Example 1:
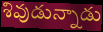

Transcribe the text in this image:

శివుడున్నాడు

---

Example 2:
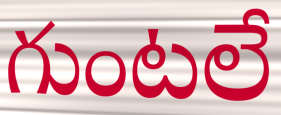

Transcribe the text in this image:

గుంటలే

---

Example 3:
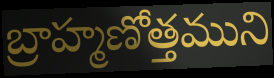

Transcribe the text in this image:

బ్రాహ్మణోత్తముని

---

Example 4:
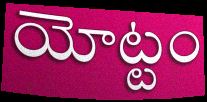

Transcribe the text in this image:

యోట్టం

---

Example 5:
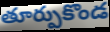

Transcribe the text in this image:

తూర్పుకొండ